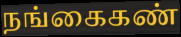
நங்கைகண்